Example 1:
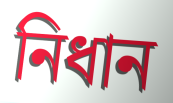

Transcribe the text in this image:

নিধান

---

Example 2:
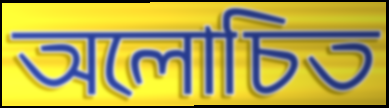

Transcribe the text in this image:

অলোচিত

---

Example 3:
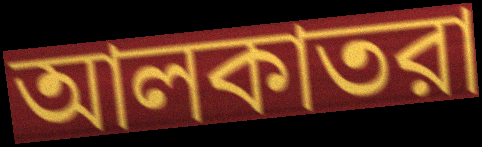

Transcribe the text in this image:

আলকাতরা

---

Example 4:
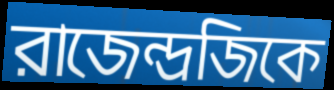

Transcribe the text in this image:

রাজেন্দ্রজিকে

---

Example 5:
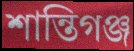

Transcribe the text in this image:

শান্তিগঞ্জ